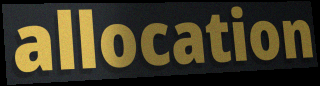
allocation